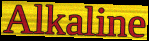
Alkaline